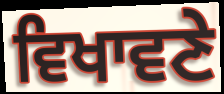
ਵਿਖਾਵਣੇ